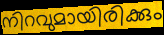
നിറവുമായിരിക്കും